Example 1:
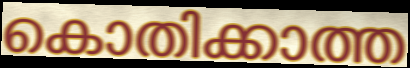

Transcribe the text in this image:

കൊതിക്കാത്ത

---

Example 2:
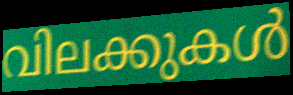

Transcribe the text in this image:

വിലക്കുകൾ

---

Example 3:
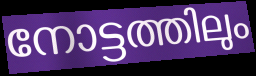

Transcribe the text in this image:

നോട്ടത്തിലും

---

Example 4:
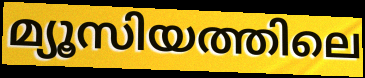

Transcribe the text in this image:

മ്യൂസിയത്തിലെ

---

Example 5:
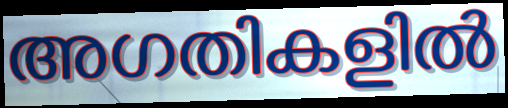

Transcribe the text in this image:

അഗതികളിൽ